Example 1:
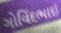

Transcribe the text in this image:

ગોવિંદભાઇ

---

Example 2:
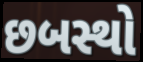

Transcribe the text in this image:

છબસ્થો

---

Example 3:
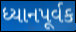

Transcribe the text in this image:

ધ્યાનપૂર્વક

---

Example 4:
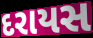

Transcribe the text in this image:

દરાયસ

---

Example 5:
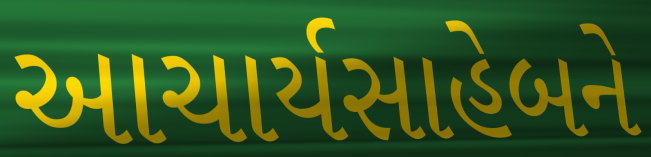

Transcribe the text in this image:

આચાર્યસાહેબને